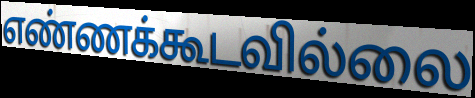
எண்ணக்கூடவில்லை